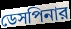
ডেসপিনার